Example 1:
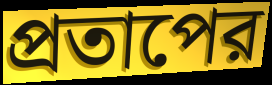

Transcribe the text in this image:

প্রতাপের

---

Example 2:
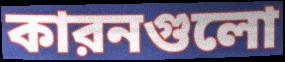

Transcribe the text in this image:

কারনগুলো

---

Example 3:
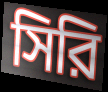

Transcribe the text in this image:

সিরি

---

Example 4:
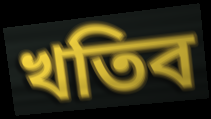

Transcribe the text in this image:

খতিব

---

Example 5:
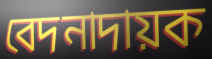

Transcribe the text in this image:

বেদনাদায়ক